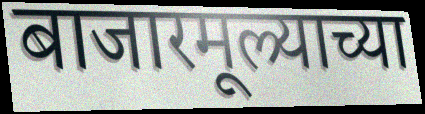
बाजारमूल्याच्या